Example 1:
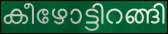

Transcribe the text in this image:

കീഴോട്ടിറങ്ങി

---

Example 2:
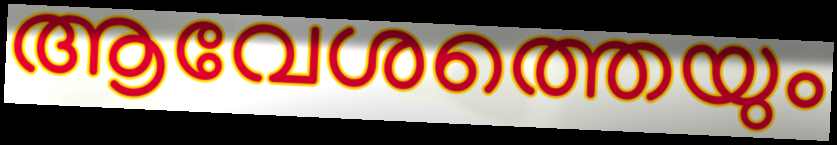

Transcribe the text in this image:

ആവേശത്തെയും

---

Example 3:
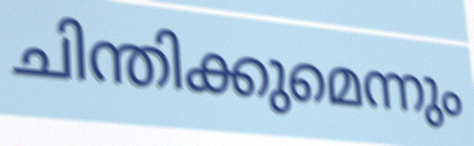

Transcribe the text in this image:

ചിന്തിക്കുമെന്നും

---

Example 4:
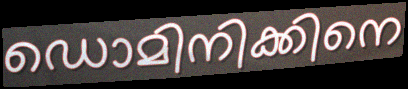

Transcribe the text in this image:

ഡൊമിനിക്കിനെ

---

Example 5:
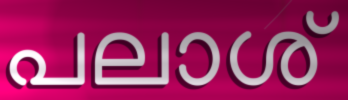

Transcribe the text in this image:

പലാശ്